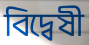
বিদ্বেষী